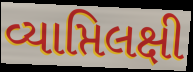
વ્યાપ્તિલક્ષી